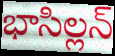
భాసిల్లన్